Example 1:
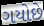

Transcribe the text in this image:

ગયોછે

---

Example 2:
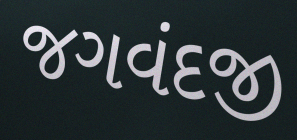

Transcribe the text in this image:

જગવંદજી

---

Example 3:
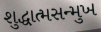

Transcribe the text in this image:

શુદ્ધાત્મસન્મુખ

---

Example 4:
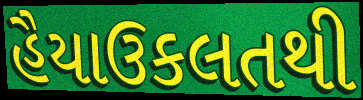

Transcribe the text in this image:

હૈયાઉકલતથી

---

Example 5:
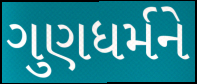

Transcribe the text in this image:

ગુણધર્મને